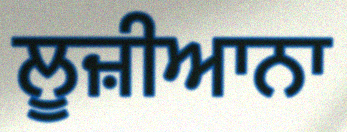
ਲੂਜ਼ੀਆਨਾ